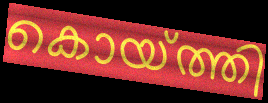
കൊയ്‌ത്തി